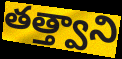
తత్త్వాని